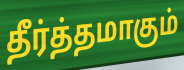
தீர்த்தமாகும்